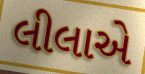
લીલાએ